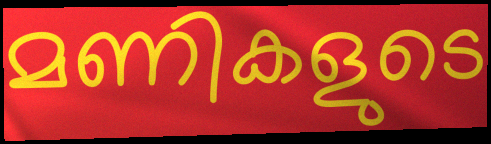
മണികളുടെ